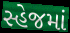
સ્હેજમાં